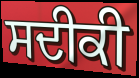
ਸਦੀਕੀ